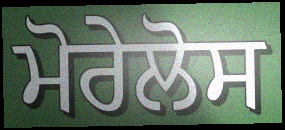
ਮੋਰੇਲੋਸ